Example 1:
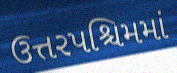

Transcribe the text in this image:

ઉત્તરપશ્ચિમમાં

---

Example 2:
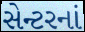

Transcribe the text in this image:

સેન્ટરનાં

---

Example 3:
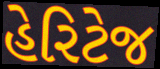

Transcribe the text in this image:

હેરિટેજ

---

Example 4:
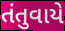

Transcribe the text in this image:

તંતુવાયે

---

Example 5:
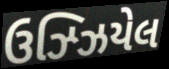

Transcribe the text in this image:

ઉઝ્ઝિયેલ